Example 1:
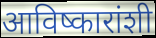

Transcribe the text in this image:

आविष्कारांशी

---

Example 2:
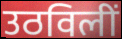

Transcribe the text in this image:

उठविलीं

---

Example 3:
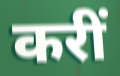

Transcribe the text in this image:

करीं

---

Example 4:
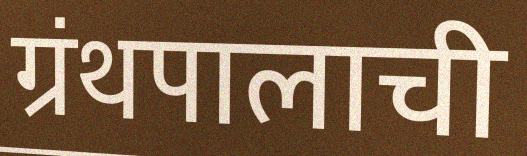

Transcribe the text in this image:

ग्रंथपालाची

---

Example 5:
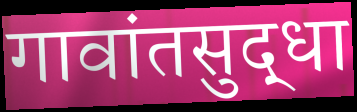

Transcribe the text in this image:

गावांतसुद्धा